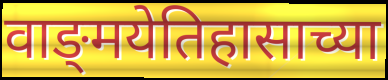
वाङ्‌मयेतिहासाच्या